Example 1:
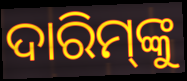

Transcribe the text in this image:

ଦାରିମ୍‍ଙ୍କୁ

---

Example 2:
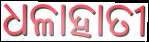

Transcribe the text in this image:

ଧଳାହାତୀ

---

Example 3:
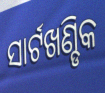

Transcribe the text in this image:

ସାର୍ଟଖଣ୍ଡିକ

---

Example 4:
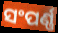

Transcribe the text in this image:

ସଂପର୍ଣ୍ଣ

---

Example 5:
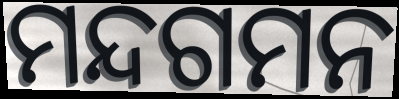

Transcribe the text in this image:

ମନ୍ଦଗମନ